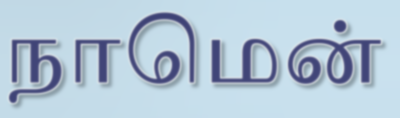
நாமென்